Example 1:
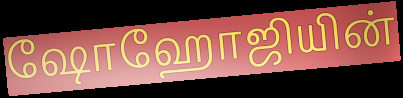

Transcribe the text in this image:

ஷோஹோஜியின்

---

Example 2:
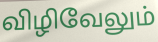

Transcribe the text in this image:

விழிவேலும்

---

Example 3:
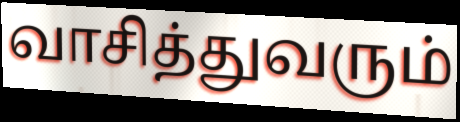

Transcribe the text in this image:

வாசித்துவரும்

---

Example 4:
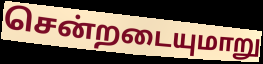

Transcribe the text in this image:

சென்றடையுமாறு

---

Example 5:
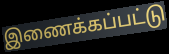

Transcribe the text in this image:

இணைக்கப்பட்டு